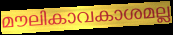
മൗലികാവകാശമല്ല